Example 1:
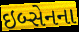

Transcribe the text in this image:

ઇબ્સેનના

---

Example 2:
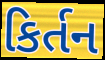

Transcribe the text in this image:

કિર્તન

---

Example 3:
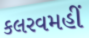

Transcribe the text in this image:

કલરવમહીં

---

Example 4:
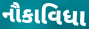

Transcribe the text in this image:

નૌકાવિધા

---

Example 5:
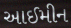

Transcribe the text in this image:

આઈમીન